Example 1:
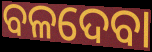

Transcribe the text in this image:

ବଳଦେବା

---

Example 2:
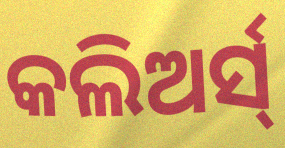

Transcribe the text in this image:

କଲିଅର୍ସ୍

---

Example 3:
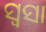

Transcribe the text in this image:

ସ୍ୱସା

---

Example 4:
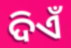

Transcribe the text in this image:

ଦିଏଁ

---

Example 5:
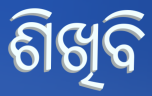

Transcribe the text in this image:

ଶିଖିବି